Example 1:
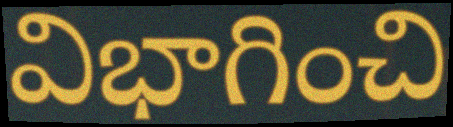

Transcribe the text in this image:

విభాగించి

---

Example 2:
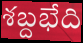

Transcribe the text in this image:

శబ్దభేది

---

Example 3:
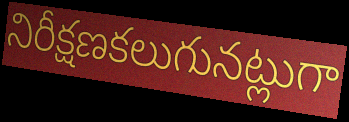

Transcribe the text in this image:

నిరీక్షణకలుగునట్లుగా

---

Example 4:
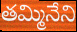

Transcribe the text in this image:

తమ్మినేని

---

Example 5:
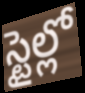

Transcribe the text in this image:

స్టైల్లో